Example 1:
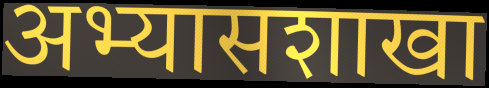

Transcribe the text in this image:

अभ्यासशाखा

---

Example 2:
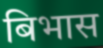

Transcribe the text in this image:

बिभास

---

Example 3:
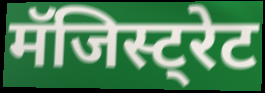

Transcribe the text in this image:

मॅजिस्ट्रेट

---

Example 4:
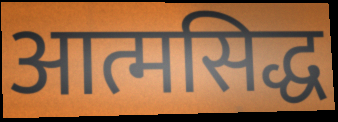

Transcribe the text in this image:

आत्मसिद्ध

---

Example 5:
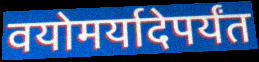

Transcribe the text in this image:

वयोमर्यादेपर्यंत